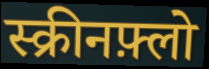
स्क्रीनफ़्लो